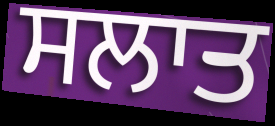
ਸਲਾਤ